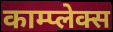
काम्प्लेक्स